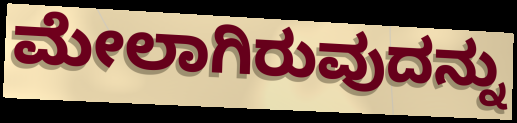
ಮೇಲಾಗಿರುವುದನ್ನು